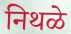
निथळे